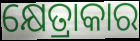
କ୍ଷେତ୍ରାକାର